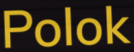
Polok